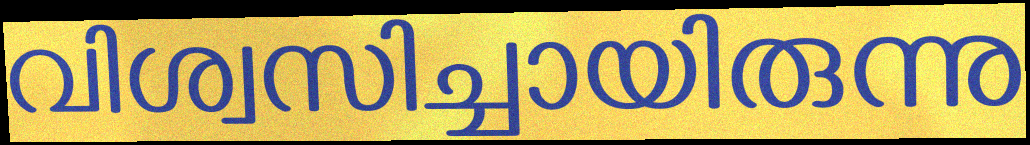
വിശ്വസിച്ചായിരുന്നു